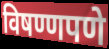
विषण्णपणे